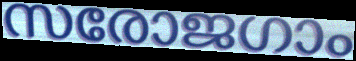
സരോജഗാം